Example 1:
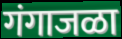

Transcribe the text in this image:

गंगाजळा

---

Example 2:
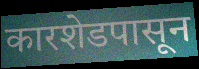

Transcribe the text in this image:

कारशेडपासून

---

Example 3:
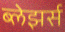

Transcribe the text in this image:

ब्लेझर्स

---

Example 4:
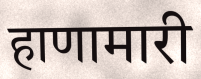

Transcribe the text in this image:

हाणामारी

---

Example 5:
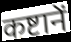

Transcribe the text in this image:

कष्टानें